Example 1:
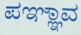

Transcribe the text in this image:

ಪಞ್ಞಾವ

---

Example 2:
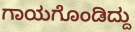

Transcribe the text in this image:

ಗಾಯಗೊಂಡಿದ್ದು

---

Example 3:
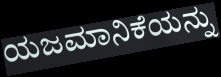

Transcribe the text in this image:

ಯಜಮಾನಿಕೆಯನ್ನು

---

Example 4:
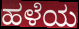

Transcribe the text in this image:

ಹಳೆಯ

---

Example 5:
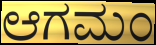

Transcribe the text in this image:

ಆಗಮಂ